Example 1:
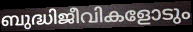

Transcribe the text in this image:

ബുദ്ധിജീവികളോടും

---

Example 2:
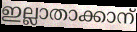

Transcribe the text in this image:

ഇല്ലാതാക്കാന്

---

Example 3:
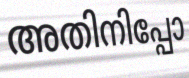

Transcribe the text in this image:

അതിനിപ്പോ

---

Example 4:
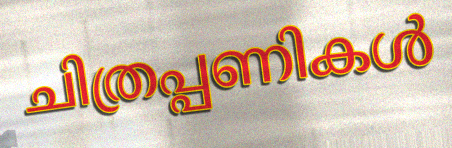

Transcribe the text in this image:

ചിത്രപ്പണികൾ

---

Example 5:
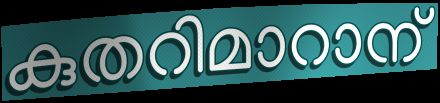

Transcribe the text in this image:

കുതറിമാറാന്